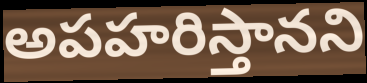
అపహరిస్తానని